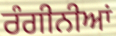
ਰੰਗੀਨੀਆਂ